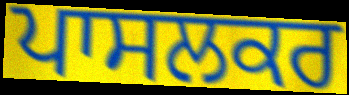
ਪਾਸਲਕਰ